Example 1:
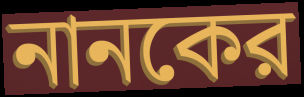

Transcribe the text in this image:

নানকের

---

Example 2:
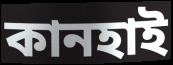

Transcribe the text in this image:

কানহাই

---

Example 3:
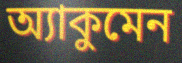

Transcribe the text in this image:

অ্যাকুমেন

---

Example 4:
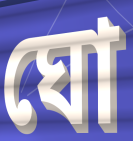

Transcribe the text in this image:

ঘো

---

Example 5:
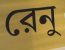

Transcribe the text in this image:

রেনু